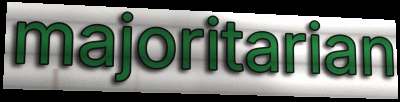
majoritarian